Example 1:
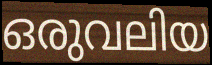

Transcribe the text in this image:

ഒരുവലിയ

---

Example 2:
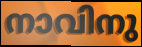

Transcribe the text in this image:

നാവിനു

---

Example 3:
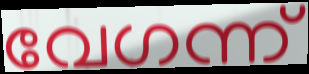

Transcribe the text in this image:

വേഗന്ന്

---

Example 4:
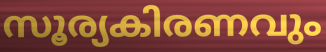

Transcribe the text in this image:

സൂര്യകിരണവും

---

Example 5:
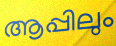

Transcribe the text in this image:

ആപ്പിലും